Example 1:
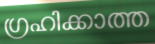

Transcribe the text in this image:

ഗ്രഹിക്കാത്ത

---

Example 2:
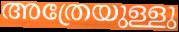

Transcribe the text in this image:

അത്രേയുള്ളു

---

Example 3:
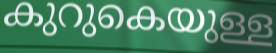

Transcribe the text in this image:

കുറുകെയുള്ള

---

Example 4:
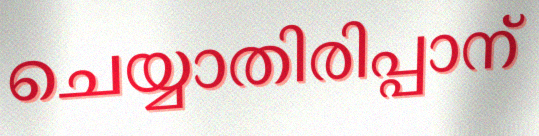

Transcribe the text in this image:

ചെയ്യാതിരിപ്പാന്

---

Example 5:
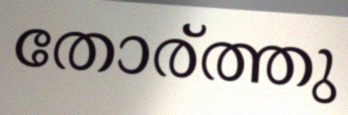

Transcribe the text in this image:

തോര്ത്തു